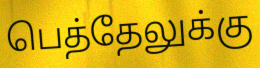
பெத்தேலுக்கு